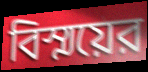
বিস্ময়ের